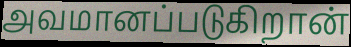
அவமானப்படுகிறான்